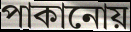
পাকানোয়